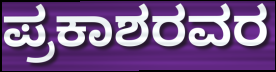
ಪ್ರಕಾಶರವರ